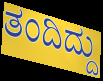
ತಂದಿದ್ದು